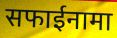
सफाईनामा